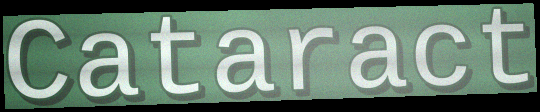
Cataract